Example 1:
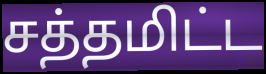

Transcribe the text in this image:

சத்தமிட்ட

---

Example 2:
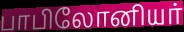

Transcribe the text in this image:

பாபிலோனியர்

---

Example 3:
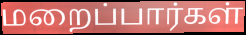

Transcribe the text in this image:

மறைப்பார்கள்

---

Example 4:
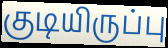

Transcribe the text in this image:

குடியிருப்பு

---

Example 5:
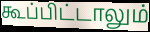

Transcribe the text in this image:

கூப்பிட்டாலும்